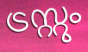
ട്രസ്റ്റും